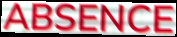
ABSENCE